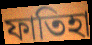
ফাতিহা